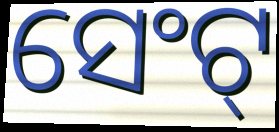
ସେଂଟ୍